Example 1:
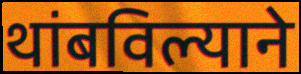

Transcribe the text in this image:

थांबविल्याने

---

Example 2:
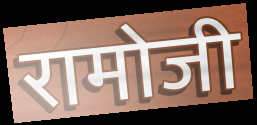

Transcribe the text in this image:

रामोजी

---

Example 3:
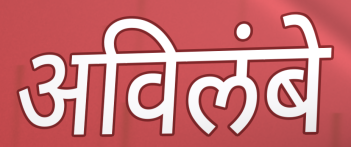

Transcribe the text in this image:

अविलंबे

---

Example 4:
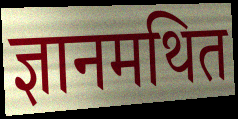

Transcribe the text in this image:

ज्ञानमथित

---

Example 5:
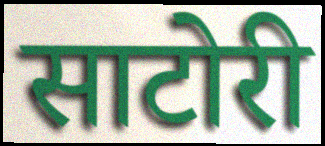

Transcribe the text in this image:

साटोरी